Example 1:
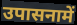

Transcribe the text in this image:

उपासनामें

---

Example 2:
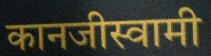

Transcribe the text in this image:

कानजीस्वामी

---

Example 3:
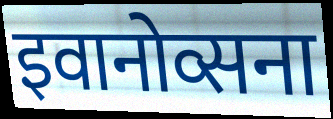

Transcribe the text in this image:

इवानोव्सना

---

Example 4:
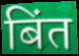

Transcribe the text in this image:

बिंत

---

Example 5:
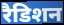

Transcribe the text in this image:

रैडिशन